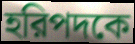
হরিপদকে